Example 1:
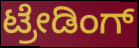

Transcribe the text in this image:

ಟ್ರೇಡಿಂಗ್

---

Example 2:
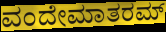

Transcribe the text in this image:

ವಂದೇಮಾತರಮ್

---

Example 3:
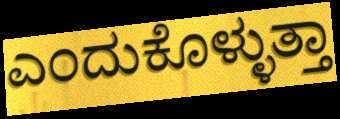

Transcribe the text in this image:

ಎಂದುಕೊಳ್ಳುತ್ತಾ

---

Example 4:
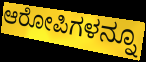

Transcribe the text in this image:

ಆರೋಪಿಗಳನ್ನೂ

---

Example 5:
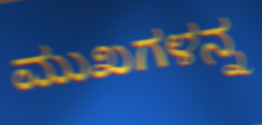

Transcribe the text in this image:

ಮುಖಗಳನ್ನ